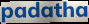
padatha